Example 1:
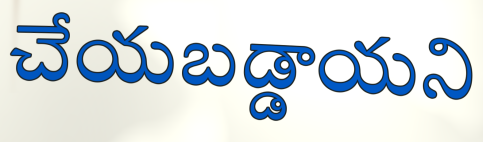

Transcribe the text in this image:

చేయబడ్డాయని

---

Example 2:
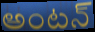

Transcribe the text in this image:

అంటన్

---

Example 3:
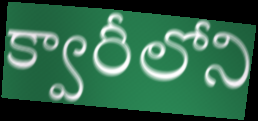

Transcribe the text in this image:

క్వారీలోని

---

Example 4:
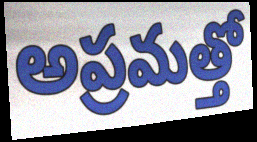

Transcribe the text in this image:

అప్రమత్తో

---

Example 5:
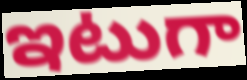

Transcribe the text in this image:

ఇటుగా